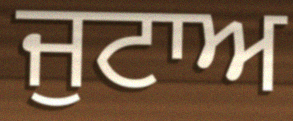
ਜੁਟਾਅ